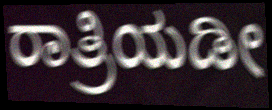
ರಾತ್ರಿಯಡೀ